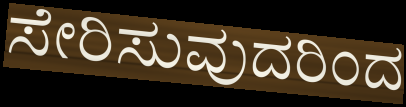
ಸೇರಿಸುವುದರಿಂದ